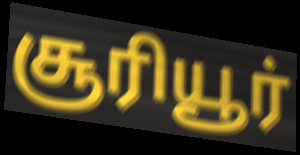
சூரியூர்